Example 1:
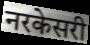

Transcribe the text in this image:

नरकेसरी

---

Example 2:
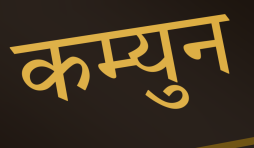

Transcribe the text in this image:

कम्युन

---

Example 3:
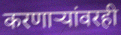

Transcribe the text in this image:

करणाऱ्यांवरही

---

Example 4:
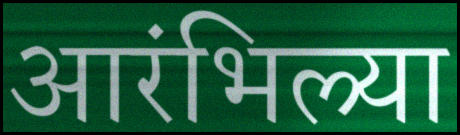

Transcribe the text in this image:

आरंभिल्या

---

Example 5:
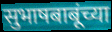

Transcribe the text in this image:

सुभाषबाबूंच्या